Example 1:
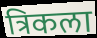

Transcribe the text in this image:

त्रिकला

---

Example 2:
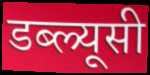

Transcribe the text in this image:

डब्ल्यूसी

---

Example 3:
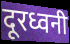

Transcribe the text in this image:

दूरध्वनी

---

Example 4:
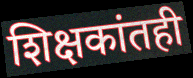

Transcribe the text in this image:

शिक्षकांतही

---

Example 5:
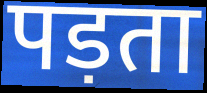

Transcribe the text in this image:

पड़ता